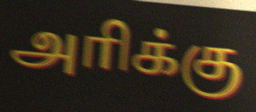
அரிக்கு